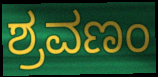
ಶ್ರವಣಂ